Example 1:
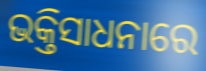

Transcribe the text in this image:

ଭକ୍ତିସାଧନାରେ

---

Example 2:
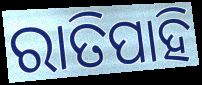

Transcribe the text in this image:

ରାତିପାହି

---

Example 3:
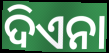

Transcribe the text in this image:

ଦିଏନା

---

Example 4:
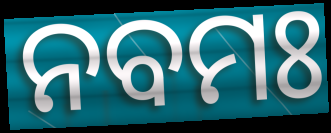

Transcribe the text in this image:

ନବମଃ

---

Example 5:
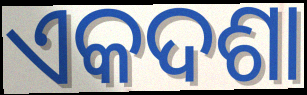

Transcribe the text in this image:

ଏକଦଶା